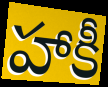
హాకీ